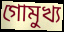
গোমুখ্য